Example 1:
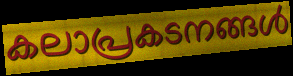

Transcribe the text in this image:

കലാപ്രകടനങ്ങൾ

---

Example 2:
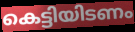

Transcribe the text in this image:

കെട്ടിയിടണം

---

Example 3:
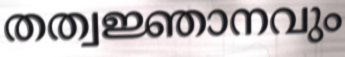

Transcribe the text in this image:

തത്വജ്ഞാനവും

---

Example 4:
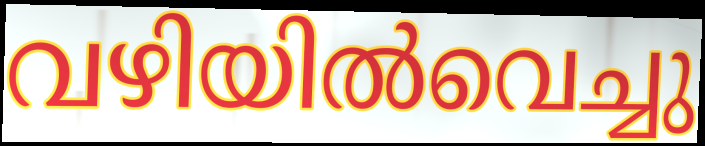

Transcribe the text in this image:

വഴിയിൽവെച്ചു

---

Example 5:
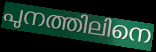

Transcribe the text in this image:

പുനത്തിലിനെ